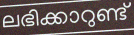
ലഭിക്കാറുണ്ട്